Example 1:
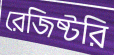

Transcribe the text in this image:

রেজিষ্টরি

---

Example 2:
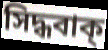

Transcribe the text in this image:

সিদ্ধবাক্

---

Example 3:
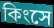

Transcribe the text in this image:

কিংসে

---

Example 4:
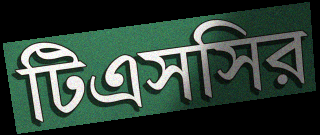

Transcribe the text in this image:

টিএসসির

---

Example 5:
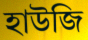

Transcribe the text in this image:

হাউজি